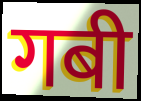
गबी